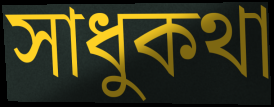
সাধুকথা